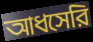
আধসেরি